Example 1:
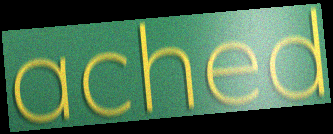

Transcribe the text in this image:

ached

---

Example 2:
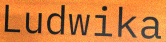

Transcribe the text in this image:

Ludwika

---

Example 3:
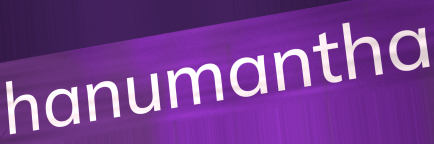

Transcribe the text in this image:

hanumantha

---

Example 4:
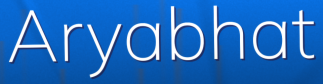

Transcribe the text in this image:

Aryabhat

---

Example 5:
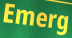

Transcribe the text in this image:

Emerg